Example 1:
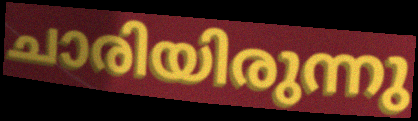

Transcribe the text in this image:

ചാരിയിരുന്നു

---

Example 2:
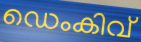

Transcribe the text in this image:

ഡെംകിവ്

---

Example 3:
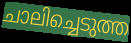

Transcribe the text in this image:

ചാലിച്ചെടുത്ത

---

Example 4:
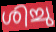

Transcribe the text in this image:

ശിച്ചു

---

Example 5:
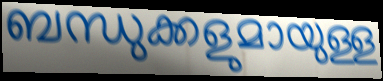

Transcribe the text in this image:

ബന്ധുക്കളുമായുള്ള